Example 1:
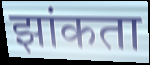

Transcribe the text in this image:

झांकता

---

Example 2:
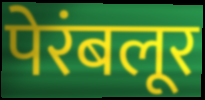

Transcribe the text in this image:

पेरंबलूर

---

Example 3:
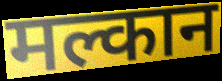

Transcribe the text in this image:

मल्कान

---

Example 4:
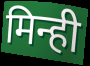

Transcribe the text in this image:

मिन्ही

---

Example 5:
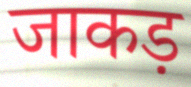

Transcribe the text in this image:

जाकड़